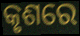
କୃଶରେ